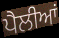
ਪੈਲੀਆਂ